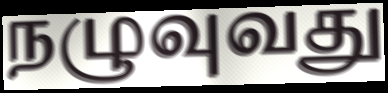
நழுவுவது